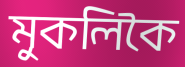
মুকলিকৈ